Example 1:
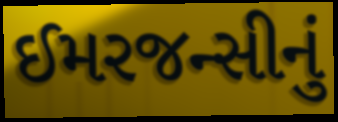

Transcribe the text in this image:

ઈમરજન્સીનું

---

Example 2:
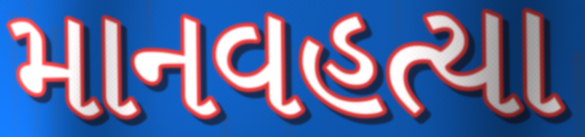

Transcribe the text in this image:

માનવહત્યા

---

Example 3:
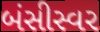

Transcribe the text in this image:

બંસીસ્વર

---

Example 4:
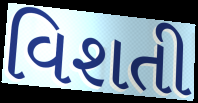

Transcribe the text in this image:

વિશતી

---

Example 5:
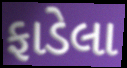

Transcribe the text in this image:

ફાડેલા